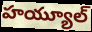
హయ్యూల్